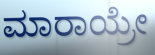
ಮಾರಾಯ್ರೇ